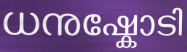
ധനുഷ്കോടി